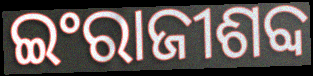
ଇଂରାଜୀଶବ୍ଦ